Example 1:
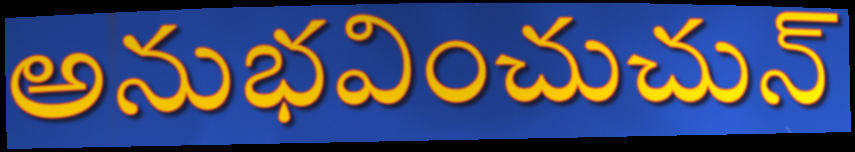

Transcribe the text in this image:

అనుభవించుచున్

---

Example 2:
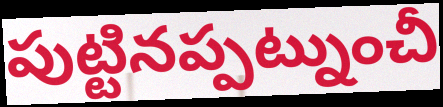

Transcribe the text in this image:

పుట్టినప్పట్నుంచీ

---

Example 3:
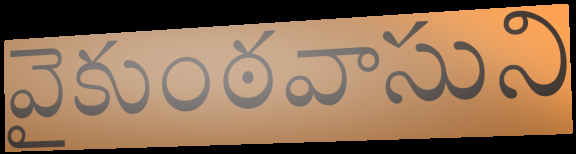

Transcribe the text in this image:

వైకుంఠవాసుని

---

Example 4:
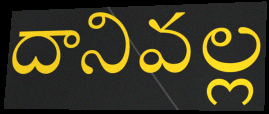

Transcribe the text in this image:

దానివల్ల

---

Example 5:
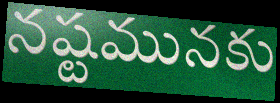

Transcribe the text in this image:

నష్టమునకు